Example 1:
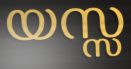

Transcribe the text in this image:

യസ്സ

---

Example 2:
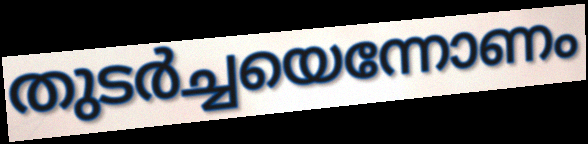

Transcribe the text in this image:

തുടർച്ചയെന്നോണം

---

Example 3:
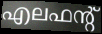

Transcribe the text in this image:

എലഫന്റ്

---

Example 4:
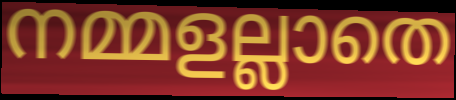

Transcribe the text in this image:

നമ്മളല്ലാതെ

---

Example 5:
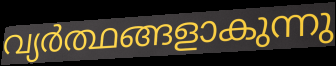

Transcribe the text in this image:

വ്യർത്ഥങ്ങളാകുന്നു